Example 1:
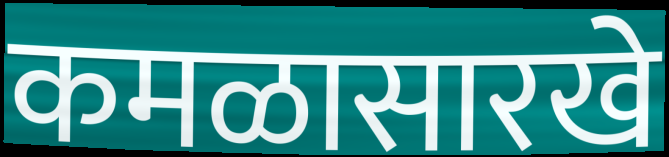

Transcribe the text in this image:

कमळासारखे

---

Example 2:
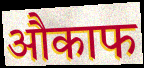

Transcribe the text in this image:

औकाफ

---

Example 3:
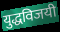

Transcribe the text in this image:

युद्धविजयी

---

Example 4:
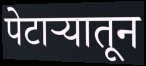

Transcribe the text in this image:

पेटाऱ्यातून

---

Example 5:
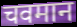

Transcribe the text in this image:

चवमान